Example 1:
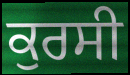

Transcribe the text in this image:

ਕੁਰਸੀ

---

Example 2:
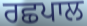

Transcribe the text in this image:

ਰਛਪਾਲ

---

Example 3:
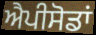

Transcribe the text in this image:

ਐਪੀਸੋਡਾਂ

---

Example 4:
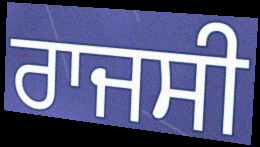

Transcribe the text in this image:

ਰਾਜਸੀ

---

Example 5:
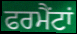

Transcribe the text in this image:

ਫਰਮੈਂਟਾਂ